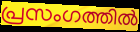
പ്രസംഗത്തിൽ